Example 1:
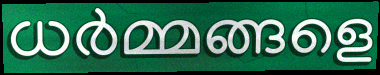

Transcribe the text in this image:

ധർമ്മങ്ങളെ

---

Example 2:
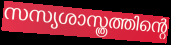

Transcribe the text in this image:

സസ്യശാസ്ത്രത്തിന്റെ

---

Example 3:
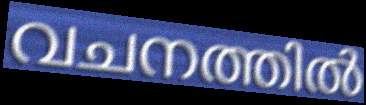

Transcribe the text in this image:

വചനത്തിൽ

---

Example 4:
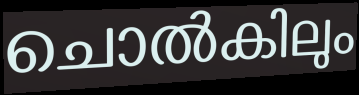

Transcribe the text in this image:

ചൊൽകിലും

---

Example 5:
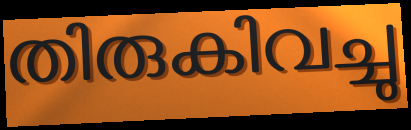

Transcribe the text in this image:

തിരുകിവച്ചു